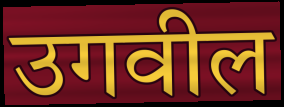
उगवील